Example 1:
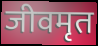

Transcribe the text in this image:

जीवमृत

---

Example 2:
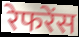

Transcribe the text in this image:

रेफरेंस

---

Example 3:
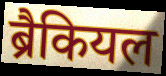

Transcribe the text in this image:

ब्रैकियल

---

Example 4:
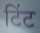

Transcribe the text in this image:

टिंट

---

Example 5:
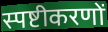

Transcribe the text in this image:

स्पष्टीकरणों